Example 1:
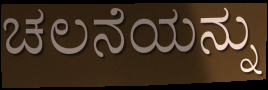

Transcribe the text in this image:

ಚಲನೆಯನ್ನು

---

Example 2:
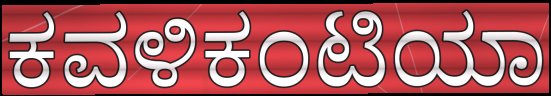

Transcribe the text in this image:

ಕವಳಿಕಂಟಿಯಾ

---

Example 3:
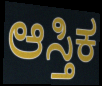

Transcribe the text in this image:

ಆಸ್ತಿಕ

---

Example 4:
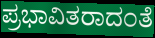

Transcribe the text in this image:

ಪ್ರಭಾವಿತರಾದಂತೆ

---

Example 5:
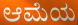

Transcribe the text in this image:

ಆಮೆಯ